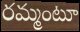
రమ్మంటూ